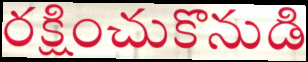
రక్షించుకొనుడి